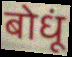
बोधूं